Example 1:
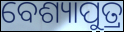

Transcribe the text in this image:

ବେଶ୍ୟାପୁତ୍ର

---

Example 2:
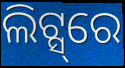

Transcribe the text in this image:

ଲିଟ୍ସ୍‌ରେ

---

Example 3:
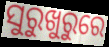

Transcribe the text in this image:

ସୁରୁଖୁରୁରେ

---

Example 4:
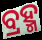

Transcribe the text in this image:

ବ୍ରହ୍ମ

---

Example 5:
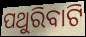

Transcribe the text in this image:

ପଥୁରିବାଟି